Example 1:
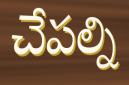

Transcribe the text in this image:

చేపల్ని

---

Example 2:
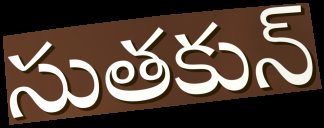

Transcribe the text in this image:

సుతకున్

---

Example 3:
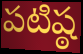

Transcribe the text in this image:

పటిష్ఠ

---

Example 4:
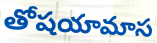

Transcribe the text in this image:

తోషయామాస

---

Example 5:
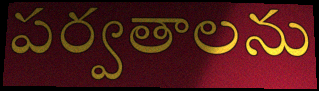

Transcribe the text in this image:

పర్వతాలను